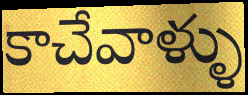
కాచేవాళ్ళు